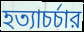
হত্যাচর্চার